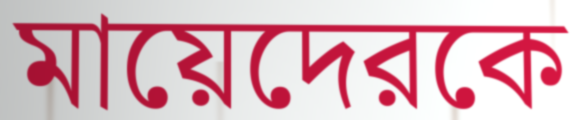
মায়েদেরকে